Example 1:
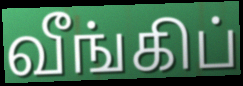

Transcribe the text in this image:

வீங்கிப்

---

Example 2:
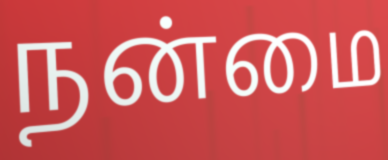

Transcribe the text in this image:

நன்மை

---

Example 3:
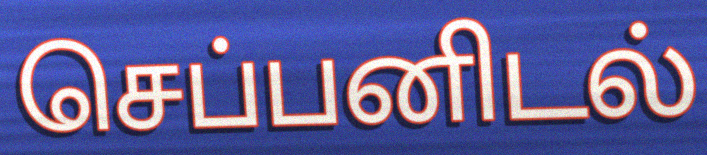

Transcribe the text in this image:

செப்பனிடல்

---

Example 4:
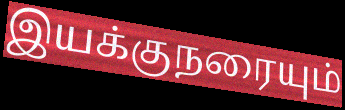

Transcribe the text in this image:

இயக்குநரையும்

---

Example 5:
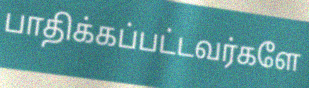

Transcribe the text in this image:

பாதிக்கப்பட்டவர்களே